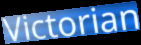
Victorian